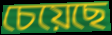
চেয়েছে